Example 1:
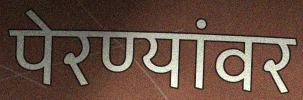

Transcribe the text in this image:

पेरण्यांवर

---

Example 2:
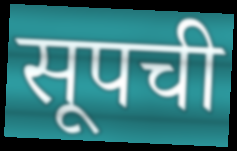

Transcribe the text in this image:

सूपची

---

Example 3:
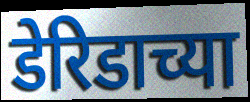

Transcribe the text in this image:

डेरिडाच्या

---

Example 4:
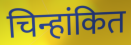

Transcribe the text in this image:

चिन्हांकित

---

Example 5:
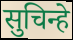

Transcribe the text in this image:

सुचिन्हे